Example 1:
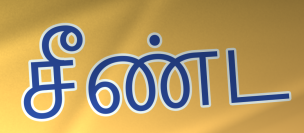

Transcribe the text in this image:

சீண்ட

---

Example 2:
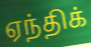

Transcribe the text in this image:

ஏந்திக்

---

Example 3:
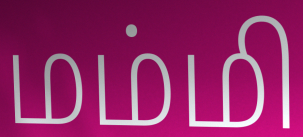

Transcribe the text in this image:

மம்மி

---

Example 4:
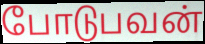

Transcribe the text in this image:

போடுபவன்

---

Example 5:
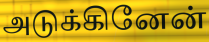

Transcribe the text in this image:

அடுக்கினேன்